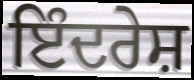
ਇੰਦਰੇਸ਼